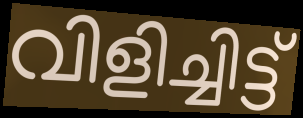
വിളിച്ചിട്ട്